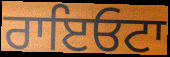
ਰਾਇਓਟਾ